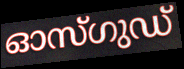
ഓസ്ഗുഡ്